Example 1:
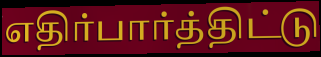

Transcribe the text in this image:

எதிர்பார்த்திட்டு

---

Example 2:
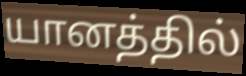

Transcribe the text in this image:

யானத்தில்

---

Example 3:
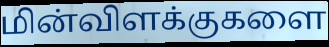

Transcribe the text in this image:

மின்விளக்குகளை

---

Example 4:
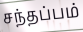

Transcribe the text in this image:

சந்தப்பம்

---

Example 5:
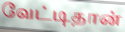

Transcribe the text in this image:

வேட்டிதான்